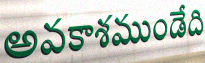
అవకాశముండేది